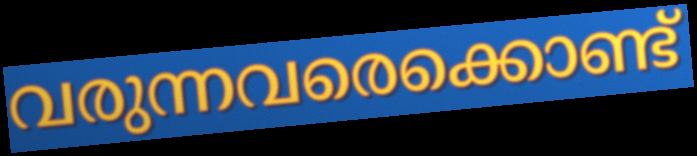
വരുന്നവരെക്കൊണ്ട്